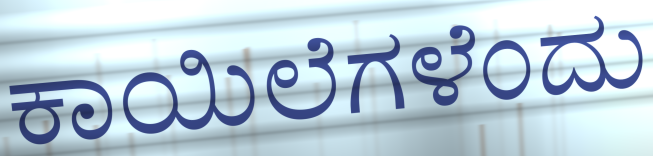
ಕಾಯಿಲೆಗಳೆಂದು